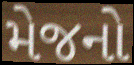
મેજનો